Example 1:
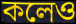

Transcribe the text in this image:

কলেও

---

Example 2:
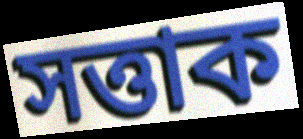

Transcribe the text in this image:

সত্তাক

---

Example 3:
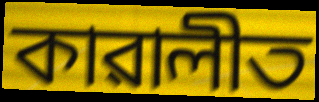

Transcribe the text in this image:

কাৱালীত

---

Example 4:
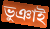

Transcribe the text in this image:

ভুঞাই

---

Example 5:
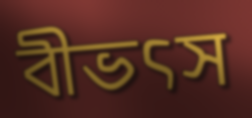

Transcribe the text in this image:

বীভৎস